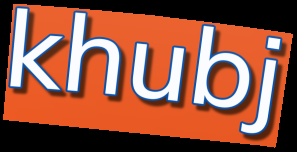
khubj